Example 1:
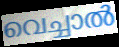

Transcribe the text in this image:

വെച്ചാൽ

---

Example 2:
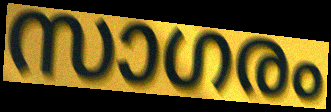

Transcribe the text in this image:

സാഗരം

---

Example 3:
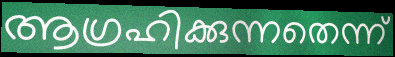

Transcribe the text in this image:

ആഗ്രഹിക്കുന്നതെന്ന്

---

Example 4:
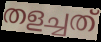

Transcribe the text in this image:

തളച്ചത്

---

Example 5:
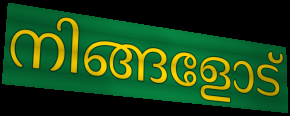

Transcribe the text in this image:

നിങ്ങളോട്